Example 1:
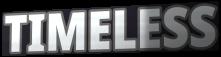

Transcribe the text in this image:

TIMELESS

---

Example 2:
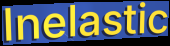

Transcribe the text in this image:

Inelastic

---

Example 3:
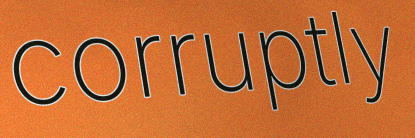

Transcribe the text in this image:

corruptly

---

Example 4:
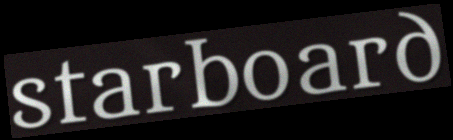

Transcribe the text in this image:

starboard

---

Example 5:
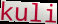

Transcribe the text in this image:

kuli